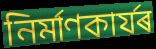
নিৰ্মাণকাৰ্যৰ